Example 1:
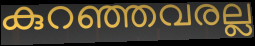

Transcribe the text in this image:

കുറഞ്ഞവരല്ല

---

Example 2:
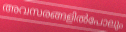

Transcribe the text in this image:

അവസരങ്ങളിൽപോലും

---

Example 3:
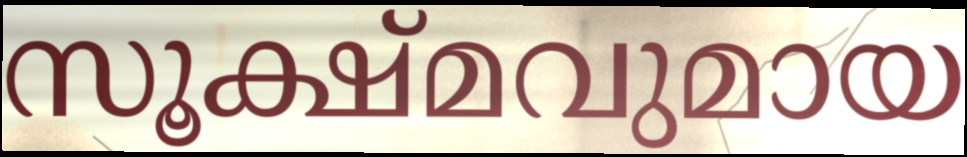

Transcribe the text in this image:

സൂക്ഷ്മവുമായ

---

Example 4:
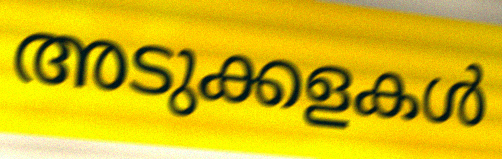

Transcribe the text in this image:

അടുക്കളകൾ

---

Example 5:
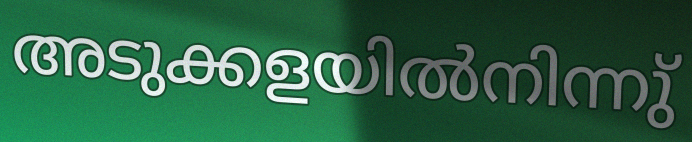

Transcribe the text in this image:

അടുക്കളയിൽനിന്നു്